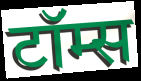
टॉम्स